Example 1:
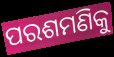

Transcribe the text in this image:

ପରଶମଣିକୁ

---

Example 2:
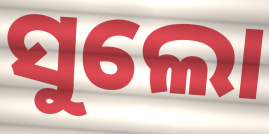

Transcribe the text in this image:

ସୁଲୋ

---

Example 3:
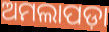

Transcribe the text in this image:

ଅମଲାପଡ଼ା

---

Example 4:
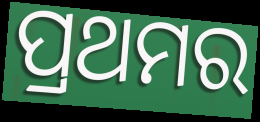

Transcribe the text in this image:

ପ୍ରଥମର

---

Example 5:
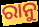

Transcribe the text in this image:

ରାନୁ